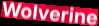
Wolverine